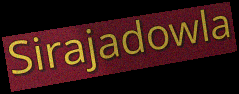
Sirajadowla